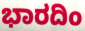
ಭಾರದಿಂ